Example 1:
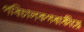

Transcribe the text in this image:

পৰিচালকগৰাকীয়ে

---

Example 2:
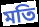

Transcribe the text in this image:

মতি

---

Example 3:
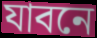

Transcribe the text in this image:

যাবনে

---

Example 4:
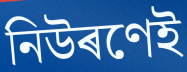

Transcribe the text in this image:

নিউৰণেই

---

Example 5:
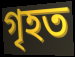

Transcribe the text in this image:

গৃহত